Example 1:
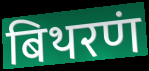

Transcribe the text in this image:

बिथरणं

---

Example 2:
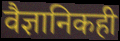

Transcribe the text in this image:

वैज्ञानिकही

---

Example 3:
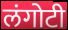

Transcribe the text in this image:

लंगोटी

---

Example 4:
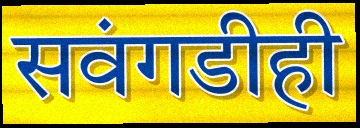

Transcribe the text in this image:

सवंगडीही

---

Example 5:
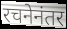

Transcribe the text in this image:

रचनेनंतर